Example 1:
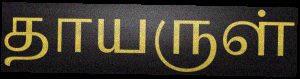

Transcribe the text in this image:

தாயருள்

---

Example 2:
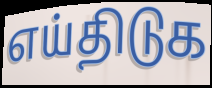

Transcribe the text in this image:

எய்திடுக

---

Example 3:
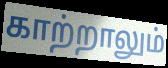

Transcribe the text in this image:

காற்றாலும்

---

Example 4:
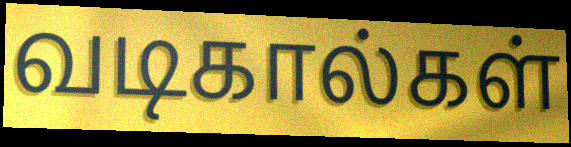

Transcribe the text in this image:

வடிகால்கள்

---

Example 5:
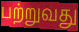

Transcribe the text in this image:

பற்றுவது